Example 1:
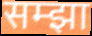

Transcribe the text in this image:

सम्झा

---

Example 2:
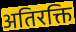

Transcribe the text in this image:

अतिरक्ति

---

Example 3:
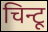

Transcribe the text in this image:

चिन्टू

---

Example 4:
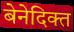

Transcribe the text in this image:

बेनेदिक्त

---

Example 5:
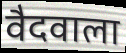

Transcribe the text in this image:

वैदवाला